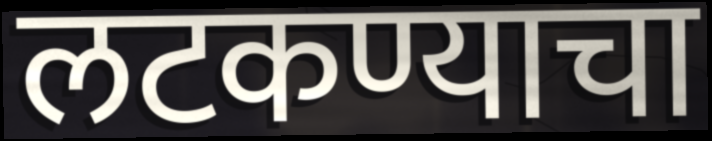
लटकण्याचा